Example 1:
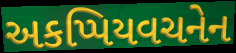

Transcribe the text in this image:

અકપ્પિયવચનેન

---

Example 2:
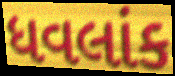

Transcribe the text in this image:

ધવલાંક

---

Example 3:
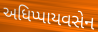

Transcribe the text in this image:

અધિપ્પાયવસેન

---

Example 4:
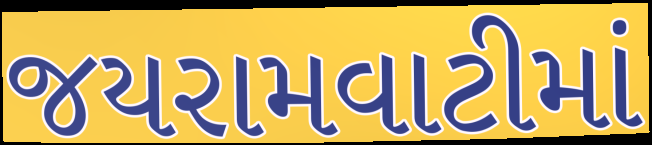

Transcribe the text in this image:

જયરામવાટીમાં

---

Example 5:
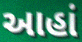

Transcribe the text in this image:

આહાં